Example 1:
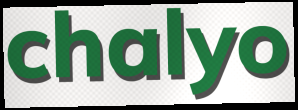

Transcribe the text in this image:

chalyo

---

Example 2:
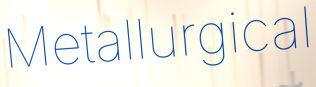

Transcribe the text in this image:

Metallurgical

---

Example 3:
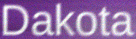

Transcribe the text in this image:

Dakota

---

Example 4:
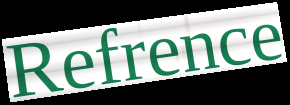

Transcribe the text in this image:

Refrence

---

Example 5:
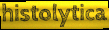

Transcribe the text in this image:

histolytica